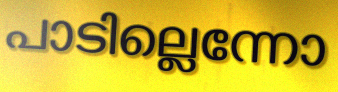
പാടില്ലെന്നോ